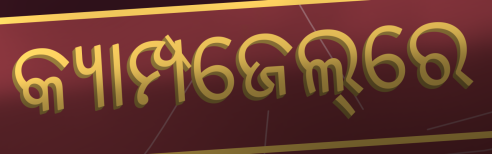
କ୍ୟାମ୍ପଜେଲ୍‌ରେ